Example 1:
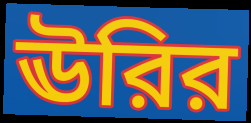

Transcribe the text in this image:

ঊরির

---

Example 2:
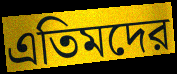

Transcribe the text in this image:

এতিমদের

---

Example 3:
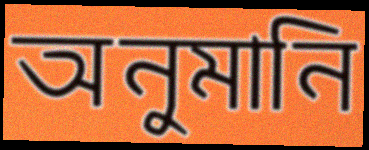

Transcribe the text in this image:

অনুমানি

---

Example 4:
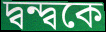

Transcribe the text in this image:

দ্বন্দ্বকে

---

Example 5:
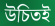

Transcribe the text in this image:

উচিতই